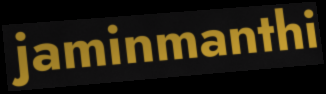
jaminmanthi